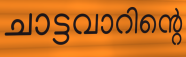
ചാട്ടവാറിന്റെ